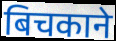
बिचकाने